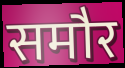
समौर